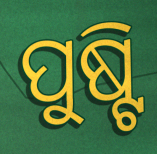
ପୁଷ୍ଟି